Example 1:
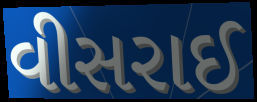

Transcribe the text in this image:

વીસરાઈ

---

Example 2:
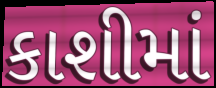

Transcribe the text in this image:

કાશીમાં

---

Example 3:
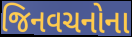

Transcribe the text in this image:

જિનવચનોના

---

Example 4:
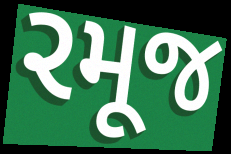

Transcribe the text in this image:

રમૂજ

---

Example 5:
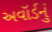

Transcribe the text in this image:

અવૉર્ડનું